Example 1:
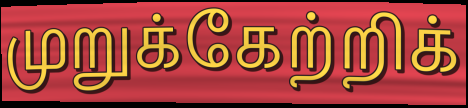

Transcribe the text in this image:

முறுக்கேற்றிக்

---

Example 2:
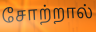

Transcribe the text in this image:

சோற்றால்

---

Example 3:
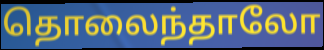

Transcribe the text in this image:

தொலைந்தாலோ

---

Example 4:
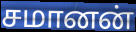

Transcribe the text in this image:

சமானன்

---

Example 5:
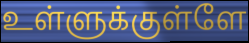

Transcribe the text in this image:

உள்ளுக்குள்ளே